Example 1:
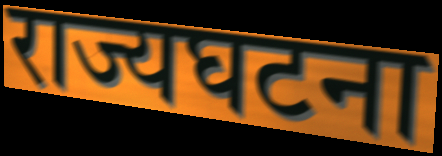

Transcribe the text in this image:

राज्यघटना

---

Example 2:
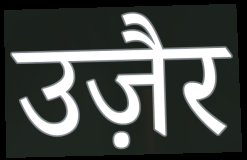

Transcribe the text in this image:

उज़ैर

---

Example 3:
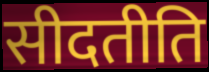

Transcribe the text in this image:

सीदतीति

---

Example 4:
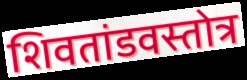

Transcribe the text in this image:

शिवतांडवस्तोत्र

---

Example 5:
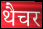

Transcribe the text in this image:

थैचर